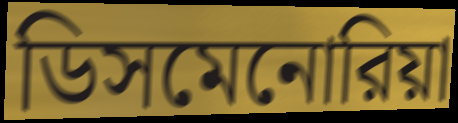
ডিসমেনোরিয়া